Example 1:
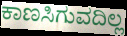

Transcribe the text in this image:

ಕಾಣಸಿಗುವದಿಲ್ಲ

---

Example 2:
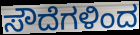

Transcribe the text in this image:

ಸೌದೆಗಳಿಂದ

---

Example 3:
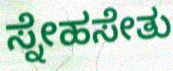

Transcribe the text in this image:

ಸ್ನೇಹಸೇತು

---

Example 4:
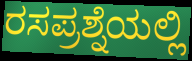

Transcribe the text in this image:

ರಸಪ್ರಶ್ನೆಯಲ್ಲಿ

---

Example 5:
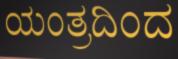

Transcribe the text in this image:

ಯಂತ್ರದಿಂದ